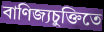
বাণিজ্যচুক্তিতে